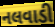
નલવાડી